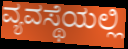
ವ್ಯವಸ್ಥೆಯಲ್ಲಿ